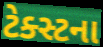
ટેક્સ્ટના